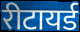
रीटायर्ड